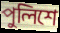
পুলিশে